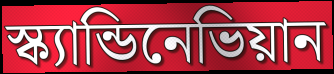
স্ক্যান্ডিনেভিয়ান